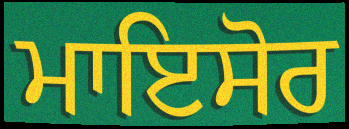
ਮਾਇਸੋਰ